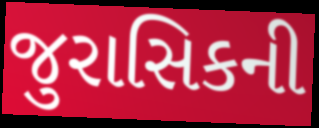
જુરાસિકની